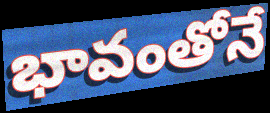
భావంతోనే